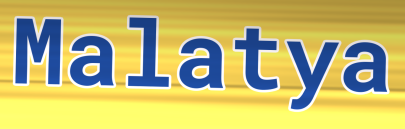
Malatya